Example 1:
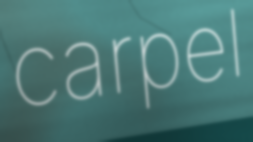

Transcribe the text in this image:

carpel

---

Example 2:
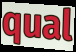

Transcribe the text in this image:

qual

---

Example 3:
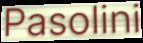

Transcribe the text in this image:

Pasolini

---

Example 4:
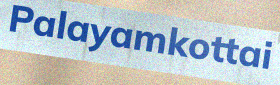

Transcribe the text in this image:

Palayamkottai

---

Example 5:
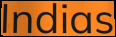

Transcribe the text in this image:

Indias